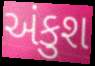
અંકુશ